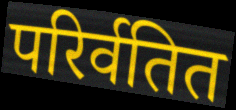
परिर्वतित